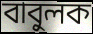
বাবুলক